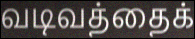
வடிவத்தைக்